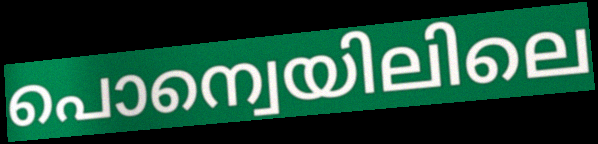
പൊന്വെയിലിലെ